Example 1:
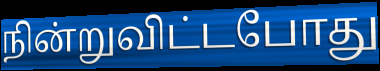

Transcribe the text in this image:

நின்றுவிட்டபோது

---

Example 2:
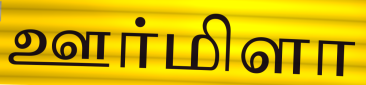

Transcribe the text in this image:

ஊர்மிளா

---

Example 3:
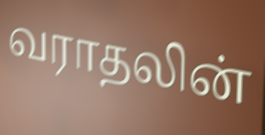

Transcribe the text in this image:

வராதலின்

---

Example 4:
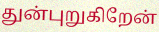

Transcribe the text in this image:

துன்புறுகிறேன்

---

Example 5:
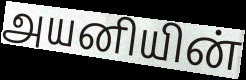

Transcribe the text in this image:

அயனியின்